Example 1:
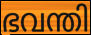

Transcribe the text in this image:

ഭവന്തി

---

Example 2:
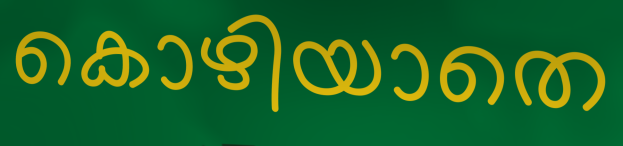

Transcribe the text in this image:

കൊഴിയാതെ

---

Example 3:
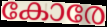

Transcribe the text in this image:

കോരേ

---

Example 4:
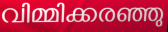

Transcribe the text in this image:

വിമ്മിക്കരഞ്ഞു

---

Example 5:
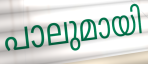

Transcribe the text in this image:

പാലുമായി